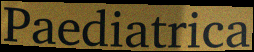
Paediatrica